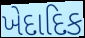
ખેદાદિક